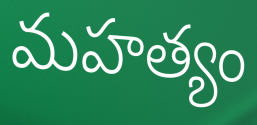
మహత్యం